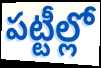
పట్టీల్లో